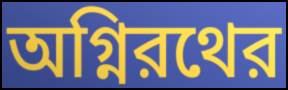
অগ্নিরথের